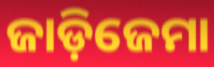
ଜାଡ଼ିଜେମା